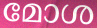
മോശ